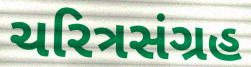
ચરિત્રસંગ્રહ